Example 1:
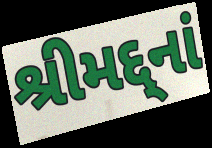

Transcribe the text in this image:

શ્રીમદ્દ્નાં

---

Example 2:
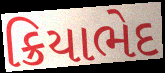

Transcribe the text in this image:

ક્રિયાભેદ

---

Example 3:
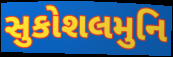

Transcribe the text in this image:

સુકોશલમુનિ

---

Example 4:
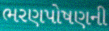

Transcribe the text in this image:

ભરણપોષણની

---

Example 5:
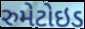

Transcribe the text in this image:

રુમેટોઇડ